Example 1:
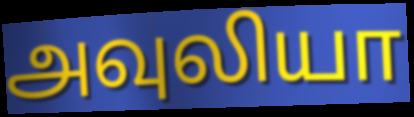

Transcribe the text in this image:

அவுலியா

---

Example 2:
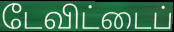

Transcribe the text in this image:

டேவிட்டைப்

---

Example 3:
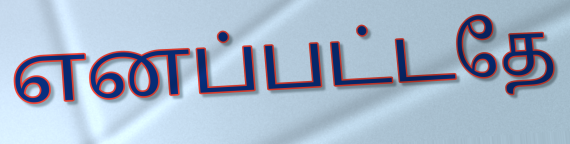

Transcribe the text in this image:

எனப்பட்டதே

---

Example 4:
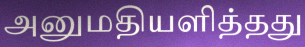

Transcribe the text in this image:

அனுமதியளித்தது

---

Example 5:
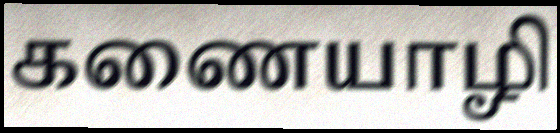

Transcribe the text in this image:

கணையாழி